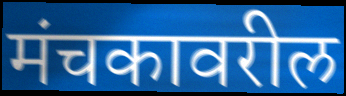
मंचकावरील